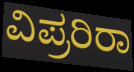
ವಿಪ್ರರಿರಾ